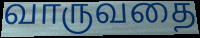
வாருவதை